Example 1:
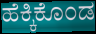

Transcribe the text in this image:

ಹೆಕ್ಕಿಕೊಂಡ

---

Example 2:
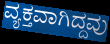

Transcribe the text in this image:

ವ್ಯಕ್ತವಾಗಿದ್ದವು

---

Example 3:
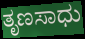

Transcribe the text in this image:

ತೃಣಸಾಧು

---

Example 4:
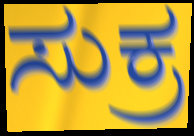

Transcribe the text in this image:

ಸುಕ್ರ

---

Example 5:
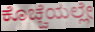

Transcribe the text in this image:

ಕೊಚ್ಚೆಯಲ್ಲೇ